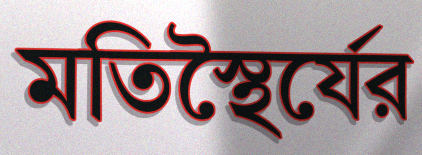
মতিস্থৈর্যের